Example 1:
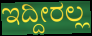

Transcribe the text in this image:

ಇದ್ದೀರಲ್ಲ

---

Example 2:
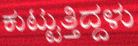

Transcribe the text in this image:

ಕುಟ್ಟುತ್ತಿದ್ದಳು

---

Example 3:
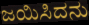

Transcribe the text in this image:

ಜಯಿಸಿದನು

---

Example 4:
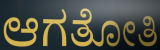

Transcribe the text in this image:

ಆಗತೋತಿ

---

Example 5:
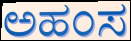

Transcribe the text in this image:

ಅಹಂಸ